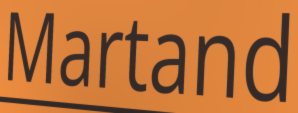
Martand